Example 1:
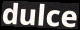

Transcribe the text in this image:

dulce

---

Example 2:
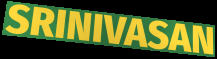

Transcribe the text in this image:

SRINIVASAN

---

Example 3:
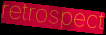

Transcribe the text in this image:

retrospect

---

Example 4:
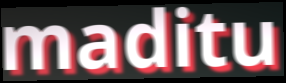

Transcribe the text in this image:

maditu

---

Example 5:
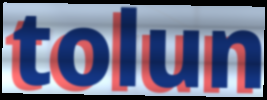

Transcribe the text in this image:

tolun